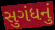
સુગંધનું